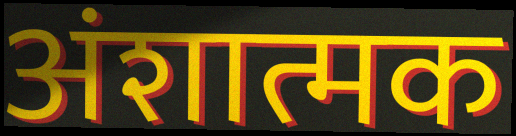
अंशात्मक